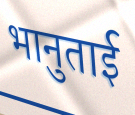
भानुताई